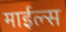
माईल्स